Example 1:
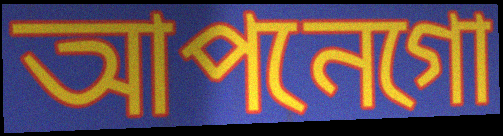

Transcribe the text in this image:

আপনেগো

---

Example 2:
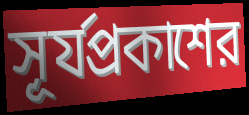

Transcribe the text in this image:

সূর্যপ্রকাশের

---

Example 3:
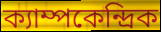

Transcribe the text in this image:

ক্যাম্পকেন্দ্রিক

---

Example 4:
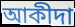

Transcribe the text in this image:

আকীদা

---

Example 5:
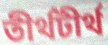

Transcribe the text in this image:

তীর্থটীর্থ